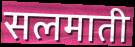
सलमाती